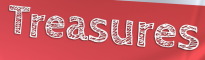
Treasures